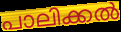
പാലിക്കൽ